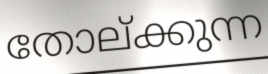
തോല്ക്കുന്ന